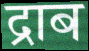
द्राब